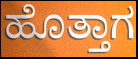
ಹೊತ್ತಾಗ